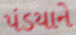
પંડયાને